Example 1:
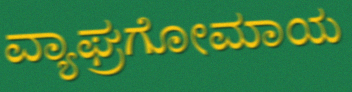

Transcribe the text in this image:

ವ್ಯಾಘ್ರಗೋಮಾಯ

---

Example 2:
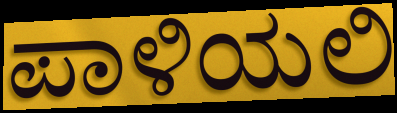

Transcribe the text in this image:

ಪಾಳಿಯಲಿ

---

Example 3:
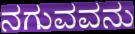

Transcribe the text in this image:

ನಗುವವನು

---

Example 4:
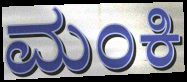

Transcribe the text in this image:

ಮಂಕಿ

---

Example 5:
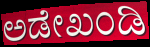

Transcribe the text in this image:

ಅಡೇಖಂಡಿ